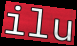
ilu